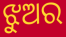
ଝୁଅର